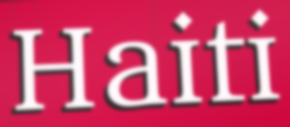
Haiti